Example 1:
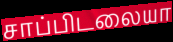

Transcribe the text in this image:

சாப்பிடலையா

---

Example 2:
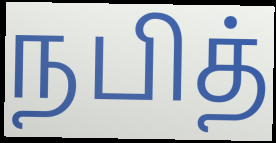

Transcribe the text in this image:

நபித்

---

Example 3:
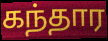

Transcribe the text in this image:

கந்தார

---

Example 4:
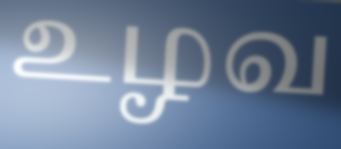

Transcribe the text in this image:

உழவ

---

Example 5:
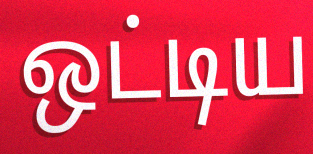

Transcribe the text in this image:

ஒட்டிய